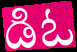
డిఓ